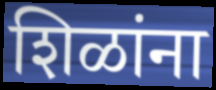
शिळांना